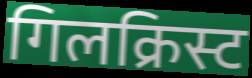
गिलक्रिस्ट